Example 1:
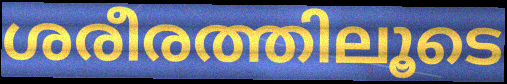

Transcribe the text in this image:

ശരീരത്തിലൂടെ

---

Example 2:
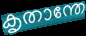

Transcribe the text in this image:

കൃതാന്തേ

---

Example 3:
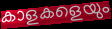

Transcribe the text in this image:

കാളകളെയും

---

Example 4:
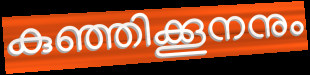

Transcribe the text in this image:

കുഞ്ഞിക്കൂനനും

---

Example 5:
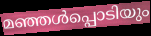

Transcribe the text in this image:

മഞ്ഞൾപ്പൊടിയും